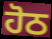
ਹੋਠ